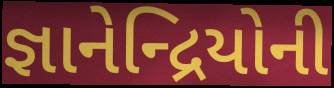
જ્ઞાનેન્દ્રિયોની